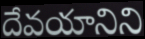
దేవయానిని